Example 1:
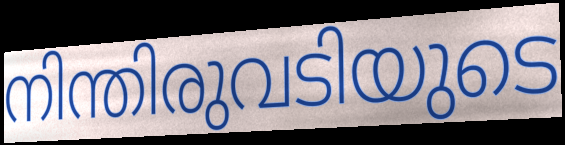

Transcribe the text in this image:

നിന്തിരുവടിയുടെ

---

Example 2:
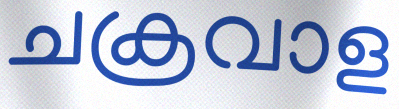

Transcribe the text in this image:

ചക്രവാള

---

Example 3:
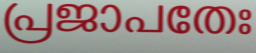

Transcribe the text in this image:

പ്രജാപതേഃ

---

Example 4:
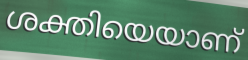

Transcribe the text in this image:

ശക്തിയെയാണ്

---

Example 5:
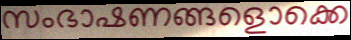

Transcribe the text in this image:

സംഭാഷണങ്ങളൊക്കെ